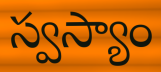
స్వస్యాం